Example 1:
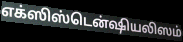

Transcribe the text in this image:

எக்ஸிஸ்டென்ஷியலிஸம்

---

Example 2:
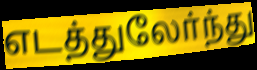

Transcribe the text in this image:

எடத்துலேர்ந்து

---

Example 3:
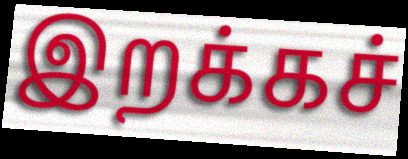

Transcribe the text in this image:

இறக்கச்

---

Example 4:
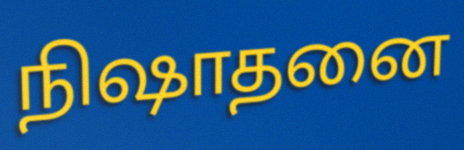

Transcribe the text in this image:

நிஷாதனை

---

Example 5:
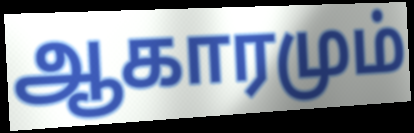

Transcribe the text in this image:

ஆகாரமும்